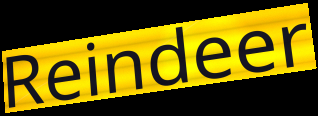
Reindeer